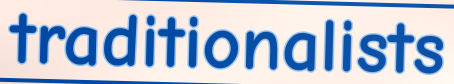
traditionalists